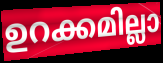
ഉറക്കമില്ലാ